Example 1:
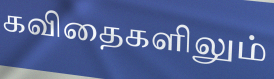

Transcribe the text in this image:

கவிதைகளிலும்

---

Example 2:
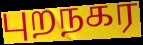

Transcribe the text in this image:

புறநகர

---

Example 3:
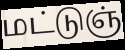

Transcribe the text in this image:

மட்டுஞ்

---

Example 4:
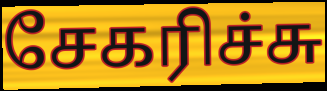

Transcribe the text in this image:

சேகரிச்சு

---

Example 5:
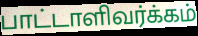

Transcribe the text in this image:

பாட்டாளிவர்க்கம்